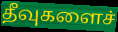
தீவுகளைச்